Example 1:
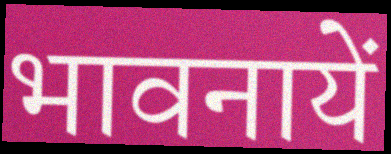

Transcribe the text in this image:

भावनायें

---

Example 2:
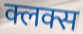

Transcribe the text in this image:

क्लक्स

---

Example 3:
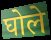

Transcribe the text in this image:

घोले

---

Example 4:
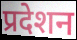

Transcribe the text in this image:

प्रदेशन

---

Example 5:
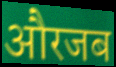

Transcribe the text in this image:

औरजब